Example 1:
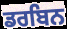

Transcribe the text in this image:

ਡਰਬਿਨ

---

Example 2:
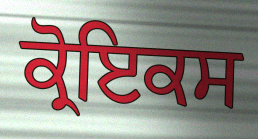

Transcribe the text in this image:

ਕ੍ਰੋਇਕਸ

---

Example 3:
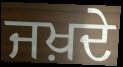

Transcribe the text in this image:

ਜਖ਼ਦੇ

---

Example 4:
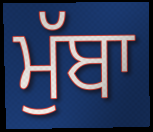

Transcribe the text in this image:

ਮੁੱਬਾ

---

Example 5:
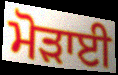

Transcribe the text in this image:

ਮੋੜਾਈ